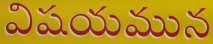
విషయమున